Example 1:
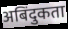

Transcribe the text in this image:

अबिंदुकता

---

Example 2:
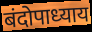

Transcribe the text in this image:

बंदोपाध्‍याय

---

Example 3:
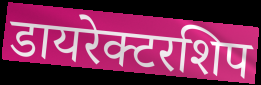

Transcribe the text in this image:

डायरेक्टरशिप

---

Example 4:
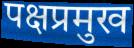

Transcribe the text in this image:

पक्षप्रमुख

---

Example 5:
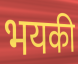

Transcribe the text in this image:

भयकी